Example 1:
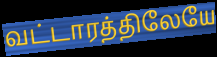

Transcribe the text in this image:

வட்டாரத்திலேயே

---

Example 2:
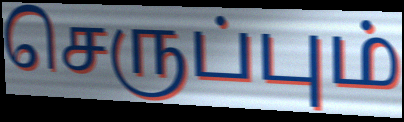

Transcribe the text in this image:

செருப்பும்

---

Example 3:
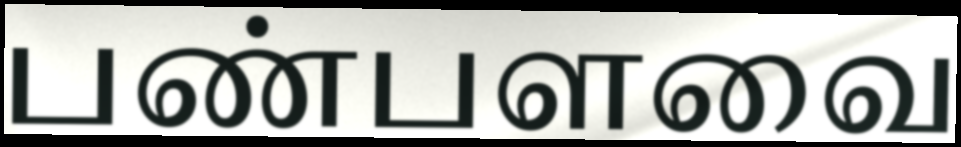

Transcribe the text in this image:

பண்பளவை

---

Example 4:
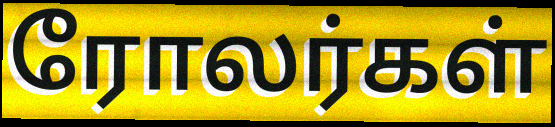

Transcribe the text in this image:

ரோலர்கள்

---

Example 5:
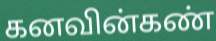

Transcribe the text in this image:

கனவின்கண்